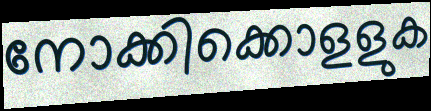
നോക്കിക്കൊളളുക